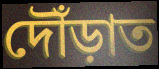
দৌঁড়াত